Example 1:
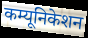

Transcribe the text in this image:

कम्यूनिकेशन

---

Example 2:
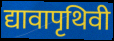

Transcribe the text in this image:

द्यावापृथिवी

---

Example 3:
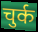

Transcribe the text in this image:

चुर्क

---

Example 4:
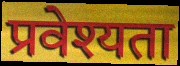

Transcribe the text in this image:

प्रवेश्यता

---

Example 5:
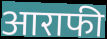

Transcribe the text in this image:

आराफी